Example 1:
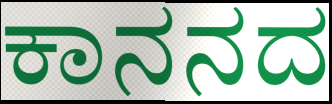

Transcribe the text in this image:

ಕಾನನದ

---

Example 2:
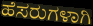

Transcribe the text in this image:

ಹೆಸರುಗಳಾಗಿ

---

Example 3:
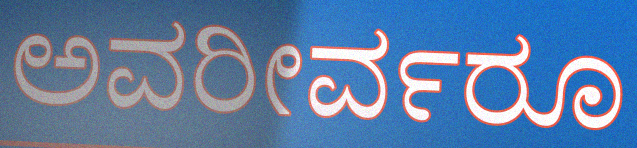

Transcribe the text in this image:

ಅವರೀರ್ವರೂ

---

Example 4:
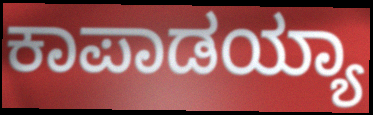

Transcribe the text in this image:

ಕಾಪಾಡಯ್ಯಾ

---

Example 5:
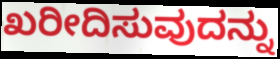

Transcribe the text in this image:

ಖರೀದಿಸುವುದನ್ನು